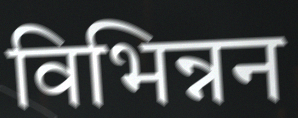
विभिन्नन